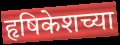
हृषिकेशच्या